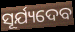
ସୂର୍ଯ୍ୟଦେବ